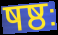
षष्ठः